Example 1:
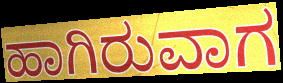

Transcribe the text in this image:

ಹಾಗಿರುವಾಗ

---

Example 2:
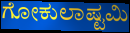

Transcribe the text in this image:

ಗೋಕುಲಾಷ್ಟಮಿ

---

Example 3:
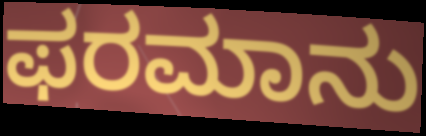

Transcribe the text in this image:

ಫರಮಾನು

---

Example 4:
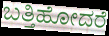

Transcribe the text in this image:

ಬತ್ತಿಹೋದರೆ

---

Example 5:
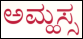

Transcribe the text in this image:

ಅಮ್ಹಸ್ಸ